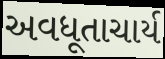
અવધૂતાચાર્ય